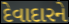
દેવાદારને